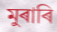
মুৰাৰি